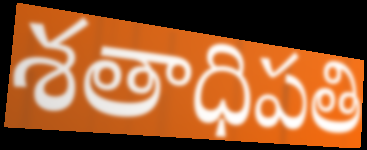
శతాధిపతి